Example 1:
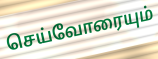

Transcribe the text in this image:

செய்வோரையும்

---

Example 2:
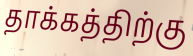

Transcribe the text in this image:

தாக்கத்திற்கு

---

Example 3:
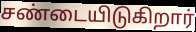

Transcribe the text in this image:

சண்டையிடுகிறார்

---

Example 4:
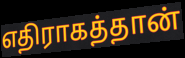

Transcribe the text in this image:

எதிராகத்தான்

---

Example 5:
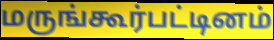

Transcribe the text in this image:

மருங்கூர்பட்டினம்